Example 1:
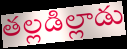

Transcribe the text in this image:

తల్లడిల్లాడు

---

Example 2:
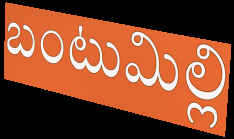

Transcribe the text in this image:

బంటుమిల్లి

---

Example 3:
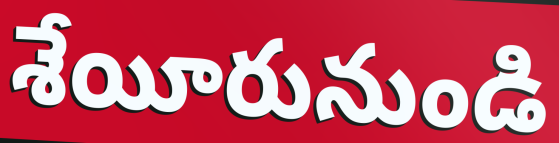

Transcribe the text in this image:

శేయీరునుండి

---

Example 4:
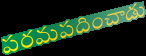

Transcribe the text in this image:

పరమపదించాడు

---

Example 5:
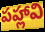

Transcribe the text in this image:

పహ్లావి